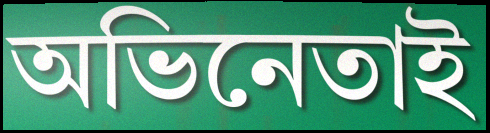
অভিনেতাই